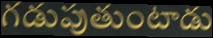
గడుపుతుంటాడు